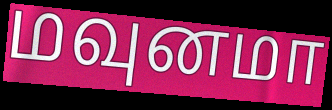
மவுனமா